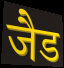
जैड